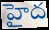
హైద